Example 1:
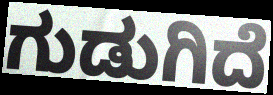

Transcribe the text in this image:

ಗುಡುಗಿದೆ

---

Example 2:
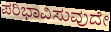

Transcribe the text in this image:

ಪರಿಭಾವಿಸುವುದೇ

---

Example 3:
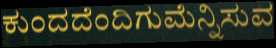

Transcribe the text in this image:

ಕುಂದದೆಂದಿಗುಮೆನ್ನಿಸುವ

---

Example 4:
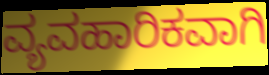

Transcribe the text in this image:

ವ್ಯವಹಾರಿಕವಾಗಿ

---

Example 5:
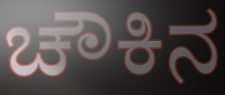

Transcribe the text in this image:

ಚೌಕಿನ